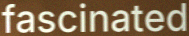
fascinated